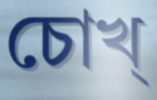
চোখ্